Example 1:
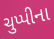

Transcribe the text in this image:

ચુપ્પીના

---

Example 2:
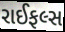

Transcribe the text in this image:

રાઈફલ્સ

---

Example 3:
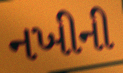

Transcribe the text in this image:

નખીની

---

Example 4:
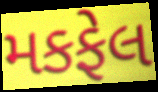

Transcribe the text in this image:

મકફેલ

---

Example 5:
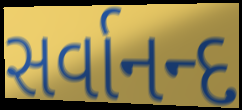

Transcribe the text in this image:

સર્વાનન્દ